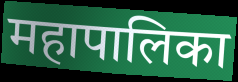
महापालिका